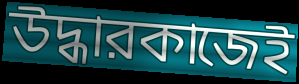
উদ্ধারকাজেই